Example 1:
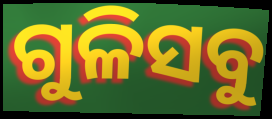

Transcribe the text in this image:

ଗୁଳିସବୁ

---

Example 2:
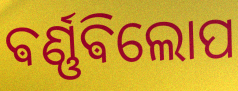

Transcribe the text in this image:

ଵର୍ଣ୍ଣଵିଲୋପ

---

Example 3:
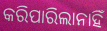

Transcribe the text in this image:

କରିପାରିଲାନାହିଁ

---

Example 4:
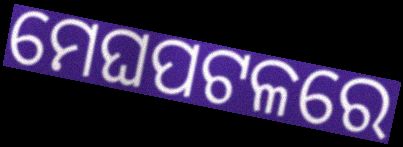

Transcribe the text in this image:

ମେଘପଟଳରେ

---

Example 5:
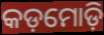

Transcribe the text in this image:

କଡ଼ମୋଡ଼ି